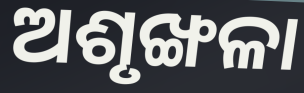
ଅଶୃଙ୍ଖଳା